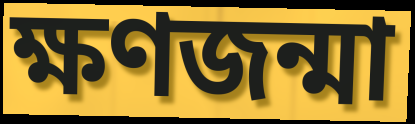
ক্ষণজন্মা